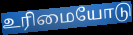
உரிமையோடு